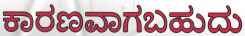
ಕಾರಣವಾಗಬಹುದು